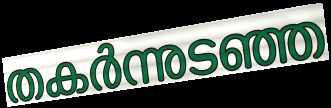
തകർന്നുടഞ്ഞ